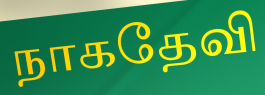
நாகதேவி